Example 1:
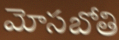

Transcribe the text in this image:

మోసబోతి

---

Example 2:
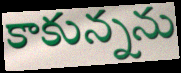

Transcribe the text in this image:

కాకున్నను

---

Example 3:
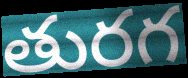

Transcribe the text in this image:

తురగ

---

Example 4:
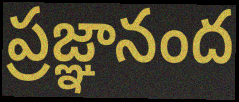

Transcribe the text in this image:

ప్రజ్ఞానంద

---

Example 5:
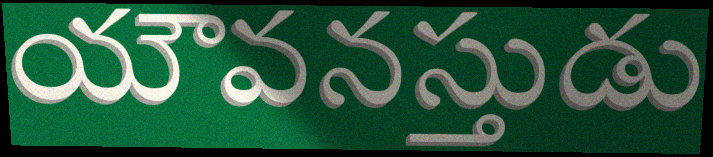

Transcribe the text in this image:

యౌవనస్తుడు